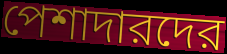
পেশাদারদের